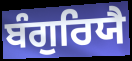
ਬੰਗੁਰਿਯੈ